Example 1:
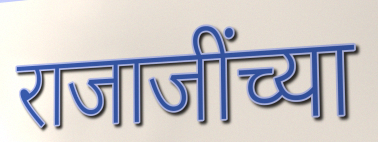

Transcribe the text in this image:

राजाजींच्या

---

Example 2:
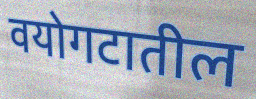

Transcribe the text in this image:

वयोगटातील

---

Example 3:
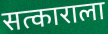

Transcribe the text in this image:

सत्काराला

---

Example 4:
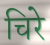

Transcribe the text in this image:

चिरे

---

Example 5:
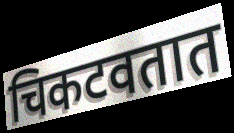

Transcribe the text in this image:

चिकटवतात